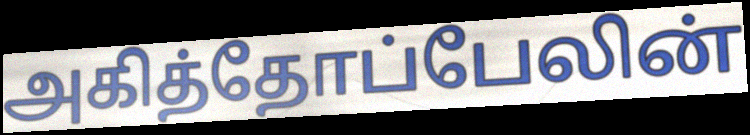
அகித்தோப்பேலின்